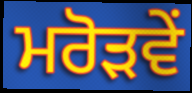
ਮਰੋੜਵੇਂ